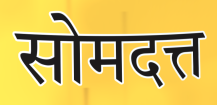
सोमदत्त